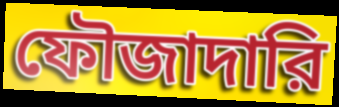
ফৌজাদারি